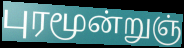
புரமூன்றுஞ்